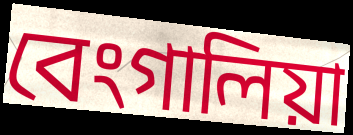
বেংগালিয়া